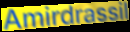
Amirdrassil